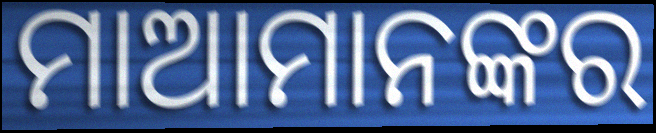
ମାଆମାନଙ୍କର